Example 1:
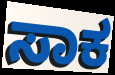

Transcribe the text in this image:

ಸಾಕ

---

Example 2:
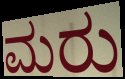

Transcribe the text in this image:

ಮರು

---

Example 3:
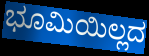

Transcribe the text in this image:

ಭೂಮಿಯಿಲ್ಲದ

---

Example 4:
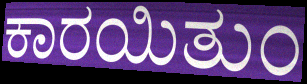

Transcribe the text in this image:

ಕಾರಯಿತುಂ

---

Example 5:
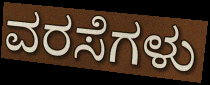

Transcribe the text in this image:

ವರಸೆಗಳು